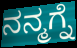
ನನ್ಮಗ್ನೆ